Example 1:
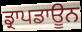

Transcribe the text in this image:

ਡ੍ਰਾਪਡਾਊਨ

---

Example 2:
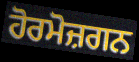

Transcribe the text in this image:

ਹੋਰਮੋਜ਼ਗਨ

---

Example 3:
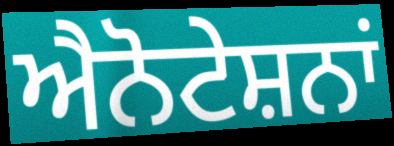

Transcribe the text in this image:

ਐਨੋਟੇਸ਼ਨਾਂ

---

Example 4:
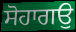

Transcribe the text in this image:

ਸੋਹਾਗਉ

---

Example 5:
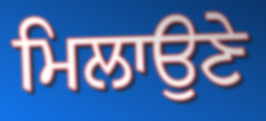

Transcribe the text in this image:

ਮਿਲਾਉਣੇ